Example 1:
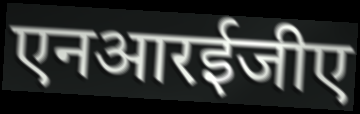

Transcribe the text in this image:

एनआरईजीए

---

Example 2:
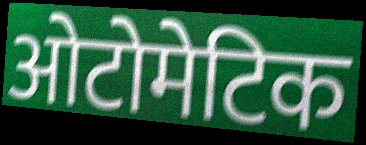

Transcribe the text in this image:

ओटोमेटिक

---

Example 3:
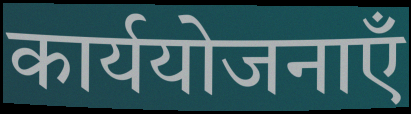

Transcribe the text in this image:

कार्ययोजनाएँ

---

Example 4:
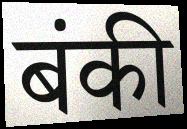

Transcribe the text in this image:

बंकी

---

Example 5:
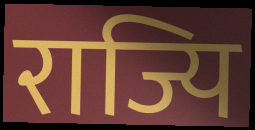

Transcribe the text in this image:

राज्यि